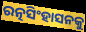
ରତ୍ନସିଂହାସନକୁ